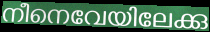
നീനെവേയിലേക്കു